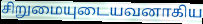
சிறுமையுடையவனாகிய